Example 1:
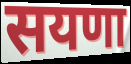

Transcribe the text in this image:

सयणा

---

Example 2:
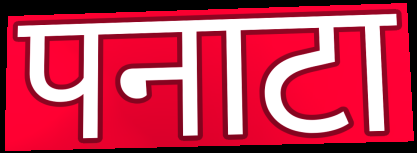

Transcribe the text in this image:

पनाटा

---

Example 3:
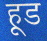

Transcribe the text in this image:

हूड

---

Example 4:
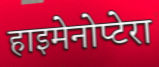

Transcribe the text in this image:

हाइमेनोप्टेरा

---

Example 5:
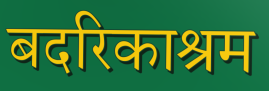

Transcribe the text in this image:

बदरिकाश्रम